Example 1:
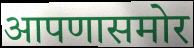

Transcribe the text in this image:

आपणासमोर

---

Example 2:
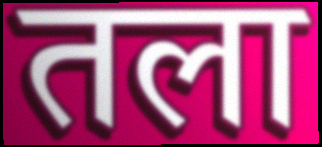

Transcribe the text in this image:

तला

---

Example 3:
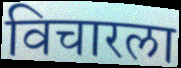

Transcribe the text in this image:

विचारला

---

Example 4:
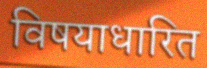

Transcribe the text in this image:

विषयाधारित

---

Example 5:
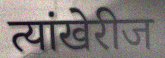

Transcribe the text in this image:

त्यांखेरीज